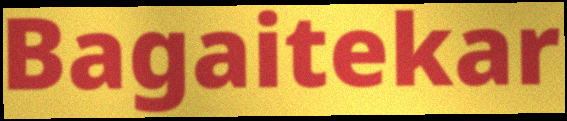
Bagaitekar